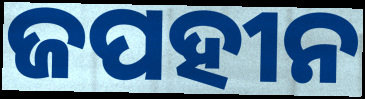
ଜପହୀନ